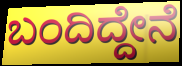
ಬಂದಿದ್ದೇನೆ